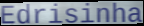
Edrisinha